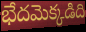
భేదమెక్కడిది